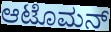
ಆಟೊಮನ್